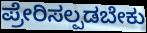
ಪ್ರೇರಿಸಲ್ಪಡಬೇಕು